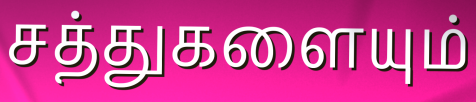
சத்துகளையும்